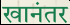
खानंतर